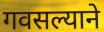
गवसल्याने